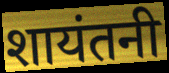
शायंतनी